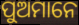
ପୁଅମାନେ